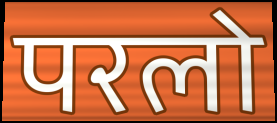
परलो